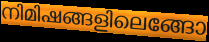
നിമിഷങ്ങളിലെങ്ങോ